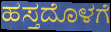
ಹಸ್ತದೊಳಗೆ